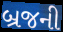
બ્રજની